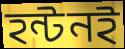
হন্টনই